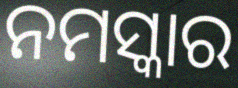
ନମସ୍କାର